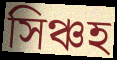
সিঞ্চহ